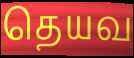
தெயவ